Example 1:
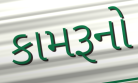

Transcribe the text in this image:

કામરૂનો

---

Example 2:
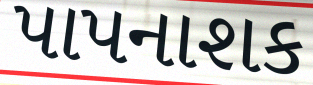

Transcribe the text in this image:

પાપનાશક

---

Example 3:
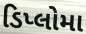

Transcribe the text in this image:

ડિપ્લોમા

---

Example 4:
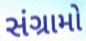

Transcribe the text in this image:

સંગ્રામો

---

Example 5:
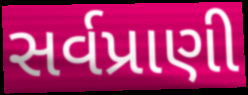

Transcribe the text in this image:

સર્વપ્રાણી